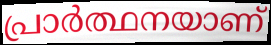
പ്രാർത്ഥനയാണ്